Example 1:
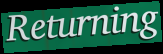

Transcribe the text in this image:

Returning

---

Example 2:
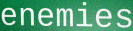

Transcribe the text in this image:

enemies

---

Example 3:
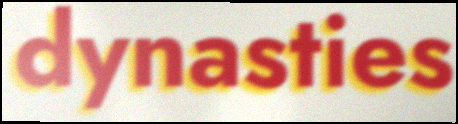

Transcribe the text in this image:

dynasties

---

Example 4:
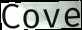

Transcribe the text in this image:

Cove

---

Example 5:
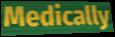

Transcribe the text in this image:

Medically